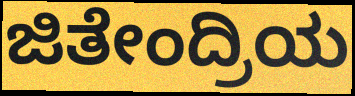
ಜಿತೇಂದ್ರಿಯ